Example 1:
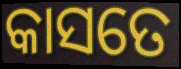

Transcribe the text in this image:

କାସତେ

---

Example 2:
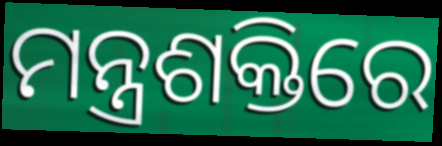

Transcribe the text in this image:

ମନ୍ତ୍ରଶକ୍ତିରେ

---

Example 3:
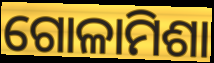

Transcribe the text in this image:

ଗୋଳାମିଶା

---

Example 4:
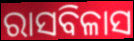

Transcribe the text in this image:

ରାସବିଳାସ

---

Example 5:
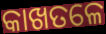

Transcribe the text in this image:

କାଖତଳେ